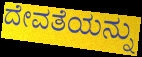
ದೇವತೆಯನ್ನು